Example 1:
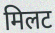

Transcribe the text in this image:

मिलट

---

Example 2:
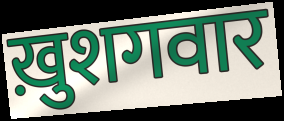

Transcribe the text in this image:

ख़ुशगवार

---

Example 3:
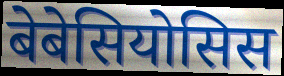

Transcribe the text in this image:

बेबेसियोसिस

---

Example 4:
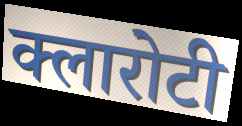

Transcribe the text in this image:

क्लारोटी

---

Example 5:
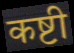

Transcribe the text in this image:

कष्टी